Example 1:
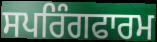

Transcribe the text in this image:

ਸਪਰਿੰਗਫਾਰਮ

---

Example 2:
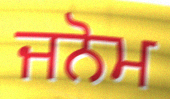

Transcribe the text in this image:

ਜਨੋਮ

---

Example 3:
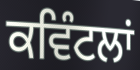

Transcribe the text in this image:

ਕਵਿੰਟਲਾਂ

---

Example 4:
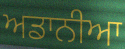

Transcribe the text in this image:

ਅਡਾਨੀਆ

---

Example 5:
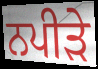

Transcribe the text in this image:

ਨਪੀੜੇ